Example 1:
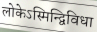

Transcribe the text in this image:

लोकेऽस्मिन्द्विविधा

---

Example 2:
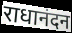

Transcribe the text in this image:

राधानंदन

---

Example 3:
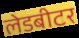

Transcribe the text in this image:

लेडबीटर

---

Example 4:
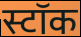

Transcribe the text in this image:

स्टॉक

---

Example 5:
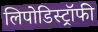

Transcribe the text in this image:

लिपोडिस्ट्रॉफी